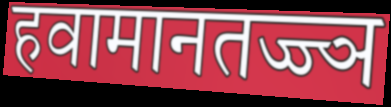
हवामानतज्ज्ञ